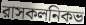
রাসকলনিকভ